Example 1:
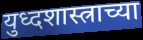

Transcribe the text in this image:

युध्दशास्त्राच्या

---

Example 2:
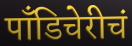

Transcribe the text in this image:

पाँडिचेरीचं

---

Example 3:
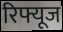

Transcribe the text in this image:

रिफ्यूज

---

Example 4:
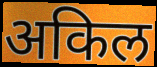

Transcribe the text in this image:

अकिल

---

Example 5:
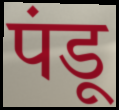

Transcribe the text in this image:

पंडू